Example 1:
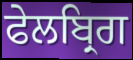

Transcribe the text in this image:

ਫੇਲਬ੍ਰਿਗ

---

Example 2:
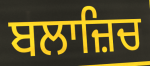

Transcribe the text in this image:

ਬਲਾਜ਼ਿਚ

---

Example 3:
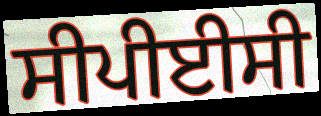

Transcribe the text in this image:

ਸੀਪੀਈਸੀ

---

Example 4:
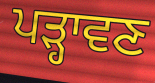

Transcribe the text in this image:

ਪੜ੍ਹਾਵਣ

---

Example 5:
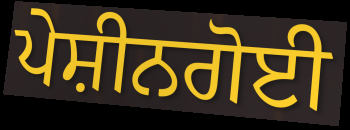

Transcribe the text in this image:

ਪੇਸ਼ੀਨਗੋਈ